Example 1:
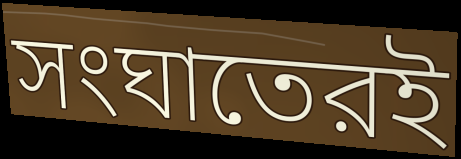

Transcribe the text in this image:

সংঘাতেরই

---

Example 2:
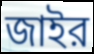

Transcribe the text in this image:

জাইর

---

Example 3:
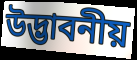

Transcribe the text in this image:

উদ্ভাবনীয়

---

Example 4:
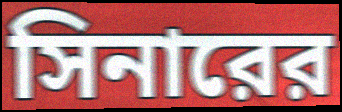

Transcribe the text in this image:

সিনারের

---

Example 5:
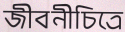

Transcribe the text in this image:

জীবনীচিত্রে